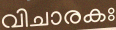
വിചാരകഃ